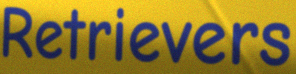
Retrievers